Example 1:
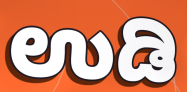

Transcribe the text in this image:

ಉಡಿ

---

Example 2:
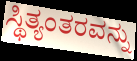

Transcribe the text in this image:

ಸ್ಥಿತ್ಯಂತರವನ್ನು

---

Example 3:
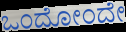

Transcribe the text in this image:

ಒಂದೋಂದೇ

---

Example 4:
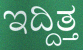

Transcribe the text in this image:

ಇದ್ದಿತ್ತ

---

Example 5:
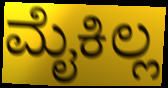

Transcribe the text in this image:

ಮೈಕಿಲ್ಲ